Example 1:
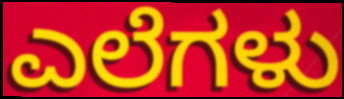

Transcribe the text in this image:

ಎಲೆಗಳು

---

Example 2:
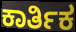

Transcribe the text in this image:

ಕಾರ್ತಿಕ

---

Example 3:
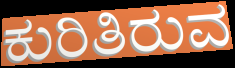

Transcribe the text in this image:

ಕುರಿತಿರುವ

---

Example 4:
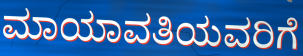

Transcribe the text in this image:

ಮಾಯಾವತಿಯವರಿಗೆ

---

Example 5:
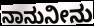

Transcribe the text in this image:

ನಾನುನೀನು